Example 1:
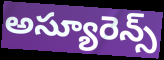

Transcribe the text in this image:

అస్యూరెన్స్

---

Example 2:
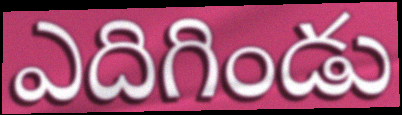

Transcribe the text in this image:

ఎదిగిండు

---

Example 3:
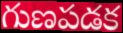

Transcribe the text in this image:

గుణపడక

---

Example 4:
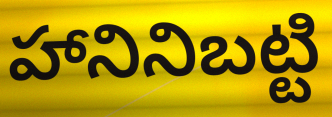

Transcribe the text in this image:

హానినిబట్టి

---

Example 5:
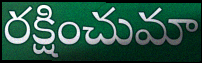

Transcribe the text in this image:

రక్షించుమా